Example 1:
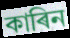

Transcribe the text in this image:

কাৰিন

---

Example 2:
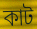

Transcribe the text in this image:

কাট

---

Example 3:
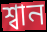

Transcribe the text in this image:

শ্বান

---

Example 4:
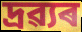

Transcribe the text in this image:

দ্ৰৱ্যৰ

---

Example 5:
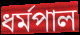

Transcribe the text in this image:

ধৰ্মপাল